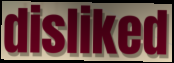
disliked